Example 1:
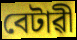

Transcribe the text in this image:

বেটাৱী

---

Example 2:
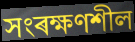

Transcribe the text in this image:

সংৰক্ষণশীল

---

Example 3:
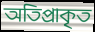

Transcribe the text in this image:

অতিপ্ৰাকৃত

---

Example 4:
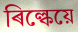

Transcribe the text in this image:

ৰিল্কেয়ে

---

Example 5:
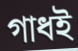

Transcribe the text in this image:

গাধই